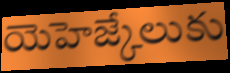
యెహెజ్కేలుకు